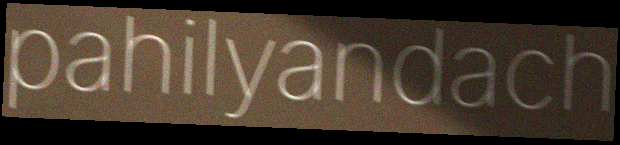
pahilyandach